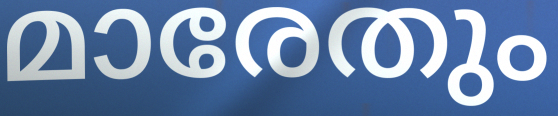
മാരേതും